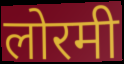
लोरमी